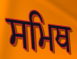
ਸਮਿਥ